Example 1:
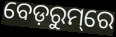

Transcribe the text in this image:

ବେଡ଼ରୁମ୍‌ରେ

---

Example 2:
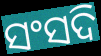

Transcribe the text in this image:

ସଂସଦି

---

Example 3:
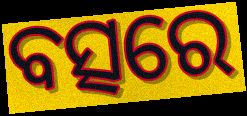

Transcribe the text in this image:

ବତ୍ସରେ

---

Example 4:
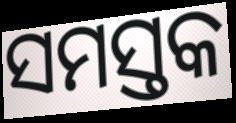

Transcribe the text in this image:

ସମସ୍ତକ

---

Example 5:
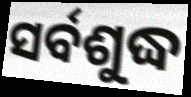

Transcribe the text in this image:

ସର୍ବଶୁଦ୍ଧ